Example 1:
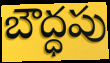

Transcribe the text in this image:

బౌద్ధపు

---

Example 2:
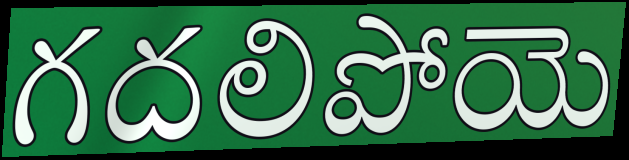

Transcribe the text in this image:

గదలిపోయె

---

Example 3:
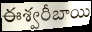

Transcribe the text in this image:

ఈశ్వరీబాయి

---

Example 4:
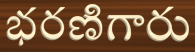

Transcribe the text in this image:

భరణిగారు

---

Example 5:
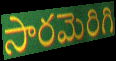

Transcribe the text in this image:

సారమెరిగి